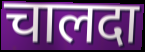
चालदा